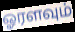
ஓரளவும்